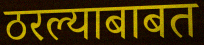
ठरल्याबाबत